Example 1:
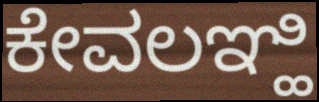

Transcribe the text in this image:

ಕೇವಲಞ್ಹಿ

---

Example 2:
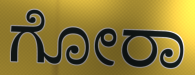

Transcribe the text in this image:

ಗೋರಾ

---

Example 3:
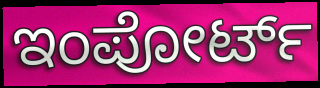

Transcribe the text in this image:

ಇಂಪೋರ್ಟ್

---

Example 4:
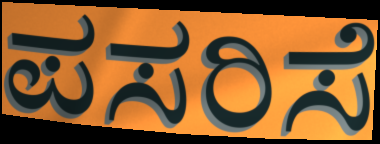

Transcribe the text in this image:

ಪಸರಿಸೆ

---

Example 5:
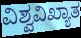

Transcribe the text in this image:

ವಿಶ್ವವಿಖ್ಯಾತ